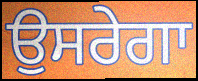
ਉਸਰੇਗਾ